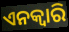
ଏନକ୍ଵାରି